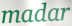
madar